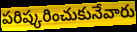
పరిష్కరించుకునేవారు